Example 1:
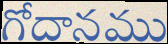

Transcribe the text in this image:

గోదానము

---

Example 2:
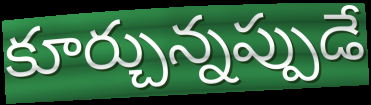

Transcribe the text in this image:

కూర్చున్నప్పుడే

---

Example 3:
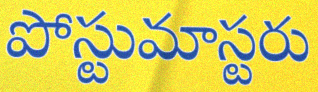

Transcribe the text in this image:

పోస్టుమాస్టరు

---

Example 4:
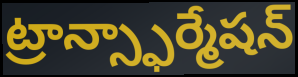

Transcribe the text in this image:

ట్రాన్స్ఫార్మేషన్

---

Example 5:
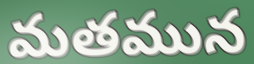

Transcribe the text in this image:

మతమున